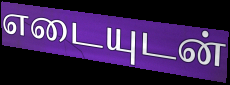
எடையுடன்